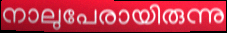
നാലുപേരായിരുന്നു